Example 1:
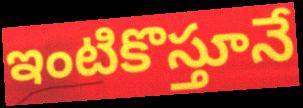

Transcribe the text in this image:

ఇంటికొస్తూనే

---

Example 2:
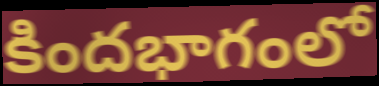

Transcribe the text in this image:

కిందభాగంలో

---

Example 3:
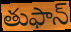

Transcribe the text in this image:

తుఫాన్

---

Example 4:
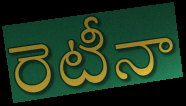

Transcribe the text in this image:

రెటీనా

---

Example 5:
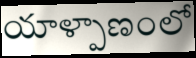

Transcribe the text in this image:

యాళ్పాణంలో